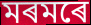
মৰমৰে